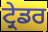
ਟ੍ਰੇਡਰ